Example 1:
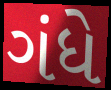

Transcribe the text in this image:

ગંધે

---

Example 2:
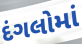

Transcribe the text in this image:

દંગલોમાં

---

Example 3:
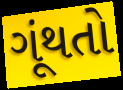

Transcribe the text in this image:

ગૂંથતો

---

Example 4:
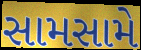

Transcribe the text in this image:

સામસામે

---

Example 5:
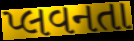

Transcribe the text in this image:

પ્લવનતા